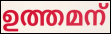
ഉത്തമന്